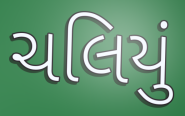
ચલિયું